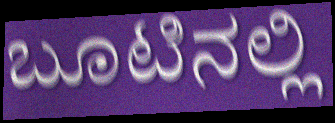
ಬೂಟಿನಲ್ಲಿ